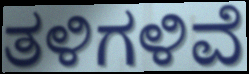
ತಳಿಗಳಿವೆ